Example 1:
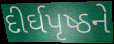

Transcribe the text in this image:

દીર્ઘપૃષ્ઠને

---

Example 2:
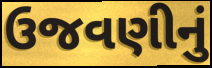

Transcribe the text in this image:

ઉજવણીનું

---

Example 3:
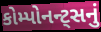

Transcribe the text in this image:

કોમ્પોનન્ટ્સનું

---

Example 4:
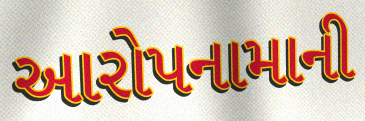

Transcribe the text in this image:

આરોપનામાની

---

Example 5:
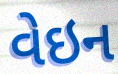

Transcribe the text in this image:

વેઇન